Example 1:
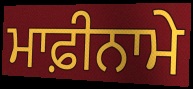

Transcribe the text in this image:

ਮਾਫ਼ੀਨਾਮੇ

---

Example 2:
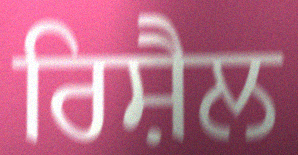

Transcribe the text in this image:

ਰਿਸ਼ੈਲ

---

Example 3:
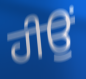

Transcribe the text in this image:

ਹੀਉਂ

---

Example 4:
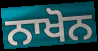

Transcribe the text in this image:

ਨਾਖੋਨ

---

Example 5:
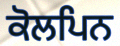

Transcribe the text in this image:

ਕੋਲਪਿਨ